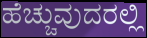
ಹೆಚ್ಚುವುದರಲ್ಲಿ